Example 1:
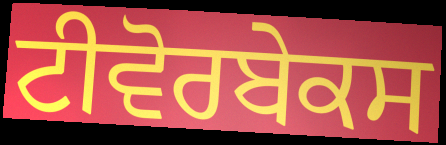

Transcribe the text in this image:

ਟੀਵੋਰਬੇਕਸ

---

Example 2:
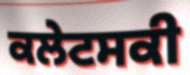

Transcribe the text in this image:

ਕਲੇਟਸਕੀ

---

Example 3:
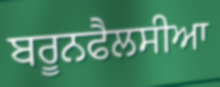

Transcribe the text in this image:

ਬਰੂਨਫੈਲਸੀਆ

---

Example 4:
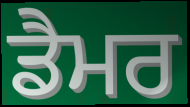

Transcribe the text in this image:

ਡੈਮਰ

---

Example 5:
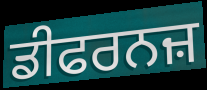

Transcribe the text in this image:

ਡੀਫਰਨਜ਼